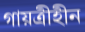
গায়ত্রীহীন